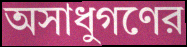
অসাধুগণের